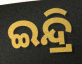
ଇନ୍ଦ୍ରି